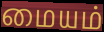
மையம்